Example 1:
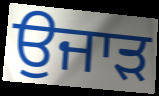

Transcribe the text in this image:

ਉੁਜਾੜ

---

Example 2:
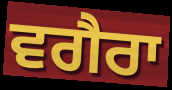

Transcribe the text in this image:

ਵਗੈਰਾ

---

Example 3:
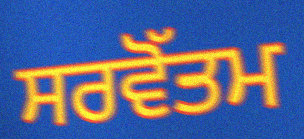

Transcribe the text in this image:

ਸਰਵੋੱਤਮ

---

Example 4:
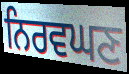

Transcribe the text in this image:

ਨਿਰਵਘਣ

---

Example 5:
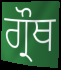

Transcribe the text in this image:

ਗ੍ਰੌਥ